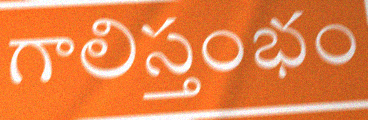
గాలిస్తంభం